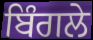
ਬਿੰਗਲੇ